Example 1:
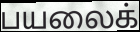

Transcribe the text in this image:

பயலைக்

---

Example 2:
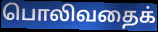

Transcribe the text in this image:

பொலிவதைக்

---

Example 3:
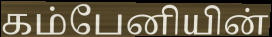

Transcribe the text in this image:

கம்பேனியின்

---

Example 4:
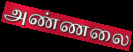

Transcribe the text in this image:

அண்ணலை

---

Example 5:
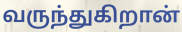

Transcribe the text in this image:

வருந்துகிறான்